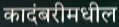
कादंबरीमधील